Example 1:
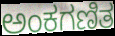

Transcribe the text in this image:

ಅಂಕಗಣಿತ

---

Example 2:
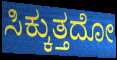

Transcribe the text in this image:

ಸಿಕ್ಕುತ್ತದೋ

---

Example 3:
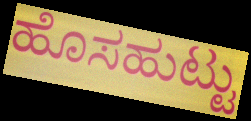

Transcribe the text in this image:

ಹೊಸಹುಟ್ಟು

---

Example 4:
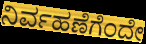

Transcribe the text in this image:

ನಿರ್ವಹಣೆಗೆಂದೇ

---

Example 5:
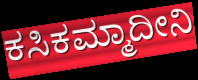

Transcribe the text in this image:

ಕಸಿಕಮ್ಮಾದೀನಿ